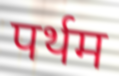
पर्थम